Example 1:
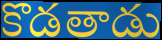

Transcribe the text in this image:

కొడతాడు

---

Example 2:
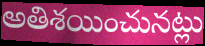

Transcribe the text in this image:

అతిశయించునట్లు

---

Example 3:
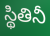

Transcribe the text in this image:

స్థితినీ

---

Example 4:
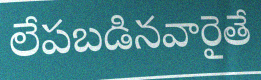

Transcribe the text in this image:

లేపబడినవారైతే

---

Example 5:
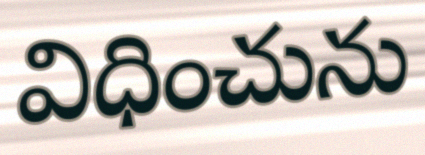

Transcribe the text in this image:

విధించును